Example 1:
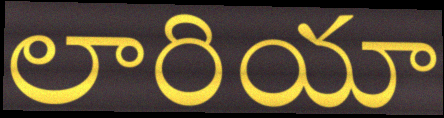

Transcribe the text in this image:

లారియా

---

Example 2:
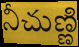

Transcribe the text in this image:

నీచుణ్ణి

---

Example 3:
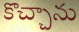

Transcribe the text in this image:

కొచ్చాను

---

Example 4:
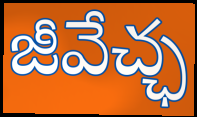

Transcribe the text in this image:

జీవేచ్ఛ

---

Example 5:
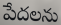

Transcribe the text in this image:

పేదలను